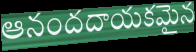
ఆనందదాయకమైన